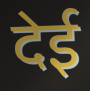
देई